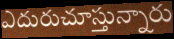
ఎదురుచూస్తున్నారు